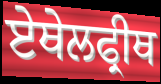
ਏਥੇਲਫ੍ਰੀਥ